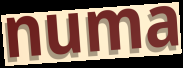
numa